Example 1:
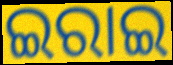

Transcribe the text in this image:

ଇରାଇ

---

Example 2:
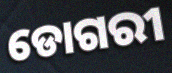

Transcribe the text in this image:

ଡୋଗରୀ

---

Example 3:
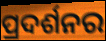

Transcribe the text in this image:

ପ୍ରଦର୍ଶନର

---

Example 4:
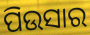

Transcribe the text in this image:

ପିଉସାର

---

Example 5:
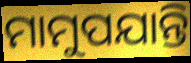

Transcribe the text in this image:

ମାମୁପଯାନ୍ତି